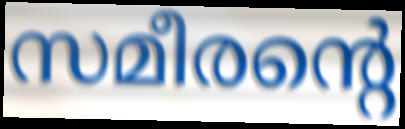
സമീരന്റെ